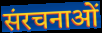
संरचनाओं